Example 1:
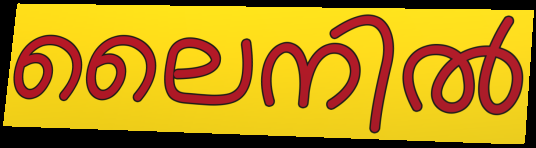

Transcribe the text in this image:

ലൈനിൽ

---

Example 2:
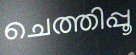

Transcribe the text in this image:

ചെത്തിപ്പൂ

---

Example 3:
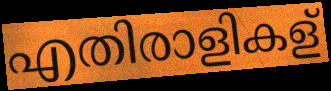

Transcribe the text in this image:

എതിരാളികള്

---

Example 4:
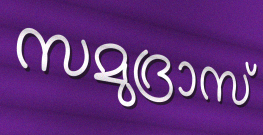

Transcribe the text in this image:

സമുദ്രാസ്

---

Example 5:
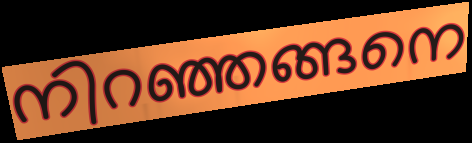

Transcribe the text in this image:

നിറഞ്ഞങ്ങനെ